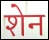
शेन